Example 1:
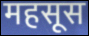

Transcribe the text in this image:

महसूस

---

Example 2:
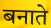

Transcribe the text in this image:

बनाते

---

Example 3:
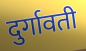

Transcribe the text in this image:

दुर्गावती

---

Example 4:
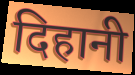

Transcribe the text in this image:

दिहानी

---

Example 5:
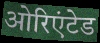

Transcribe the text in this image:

ओरिएंटेड